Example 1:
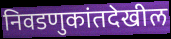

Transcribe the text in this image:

निवडणुकांतदेखील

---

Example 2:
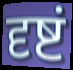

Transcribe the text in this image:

दृष्टं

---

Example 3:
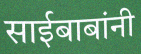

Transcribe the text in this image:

साईबाबांनी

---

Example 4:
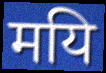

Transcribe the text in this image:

मयि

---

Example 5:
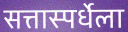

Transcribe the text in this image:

सत्तास्पर्धेला